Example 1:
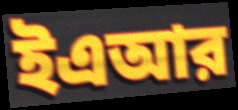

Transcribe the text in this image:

ইএআর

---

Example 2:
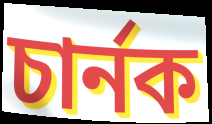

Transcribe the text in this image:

চার্নক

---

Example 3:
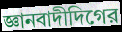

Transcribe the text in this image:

জ্ঞানবাদীদিগের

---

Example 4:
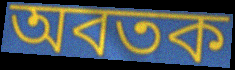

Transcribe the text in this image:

অবতক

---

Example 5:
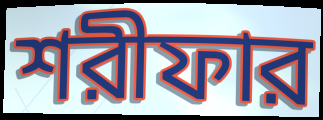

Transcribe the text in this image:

শরীফার